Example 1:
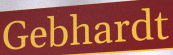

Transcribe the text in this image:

Gebhardt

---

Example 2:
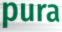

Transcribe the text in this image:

pura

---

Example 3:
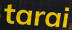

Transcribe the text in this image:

tarai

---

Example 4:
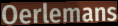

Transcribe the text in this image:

Oerlemans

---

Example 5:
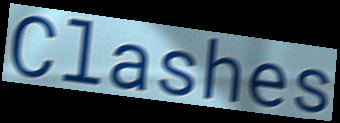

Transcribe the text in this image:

Clashes